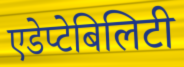
एडेप्टेबिलिटी